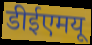
डीईएमयू